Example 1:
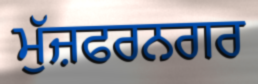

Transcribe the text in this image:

ਮੁੱਜ਼ਫਰਨਗਰ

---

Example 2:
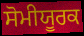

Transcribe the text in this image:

ਸੋਮੀਯੂਰਕ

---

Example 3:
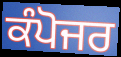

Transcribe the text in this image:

ਕੰਪੋਜਰ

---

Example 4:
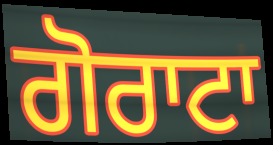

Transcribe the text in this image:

ਗੋਰਾਟਾ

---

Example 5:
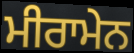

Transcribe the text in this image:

ਮੀਰਾਮੇਨ